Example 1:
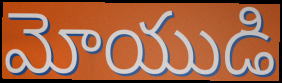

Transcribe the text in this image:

మోయుడి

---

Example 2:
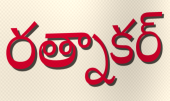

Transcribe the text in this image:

రత్నాకర్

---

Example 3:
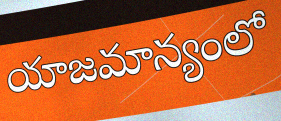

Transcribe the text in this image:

యాజమాన్యంలో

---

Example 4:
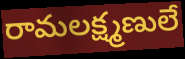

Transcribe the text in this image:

రామలక్ష్మణులే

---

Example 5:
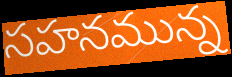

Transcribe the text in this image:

సహనమున్న